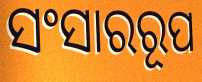
ସଂସାରରୂପ